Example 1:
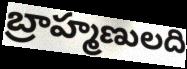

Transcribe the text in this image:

బ్రాహ్మణులది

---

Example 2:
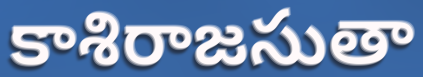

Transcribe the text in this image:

కాశిరాజసుతా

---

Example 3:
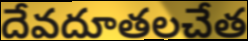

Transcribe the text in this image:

దేవదూతలచేత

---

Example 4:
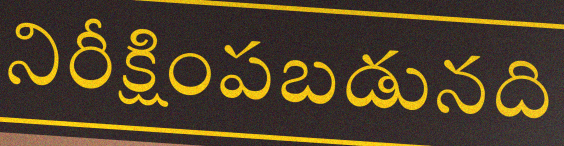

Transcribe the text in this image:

నిరీక్షింపబడునది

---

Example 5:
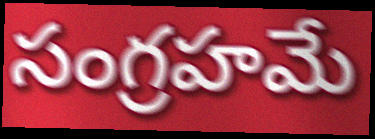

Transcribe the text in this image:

సంగ్రహమే